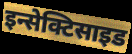
इन्सेक्टिसाइड